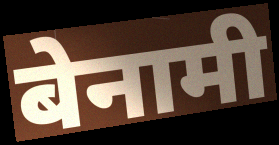
बेनामी